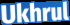
Ukhrul